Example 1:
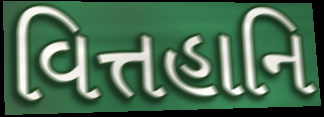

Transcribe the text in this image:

વિત્તહાનિ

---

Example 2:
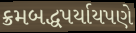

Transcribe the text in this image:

ક્રમબદ્ધપર્યાયપણે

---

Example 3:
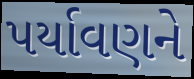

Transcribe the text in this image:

પર્યાવણને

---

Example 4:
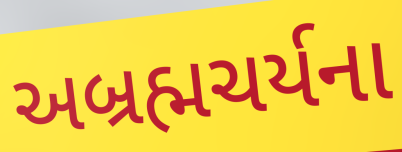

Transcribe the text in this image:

અબ્રહ્મચર્યના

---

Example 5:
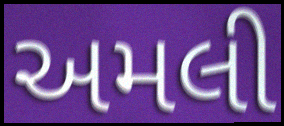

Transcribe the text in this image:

અમલી